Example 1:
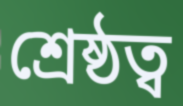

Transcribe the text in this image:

শ্ৰেষ্ঠত্ব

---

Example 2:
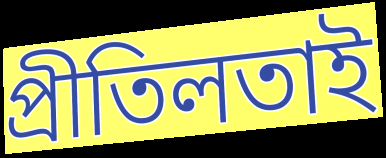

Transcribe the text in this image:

প্ৰীতিলতাই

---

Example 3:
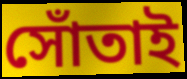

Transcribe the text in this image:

সোঁতাই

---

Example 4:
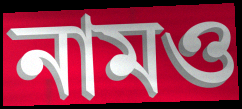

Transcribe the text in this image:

নামও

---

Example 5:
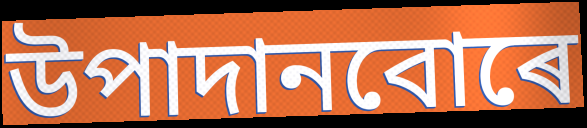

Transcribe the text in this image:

উপাদানবোৰে